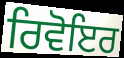
ਰਿਵੋਇਰ